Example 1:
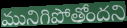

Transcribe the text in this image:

మునిగిపోతోందని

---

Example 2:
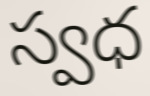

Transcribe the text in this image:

స్వధ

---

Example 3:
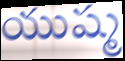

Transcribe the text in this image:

యుష్మ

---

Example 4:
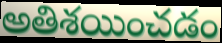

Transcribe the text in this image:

అతిశయించడం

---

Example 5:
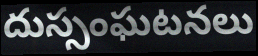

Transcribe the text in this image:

దుస్సంఘటనలు